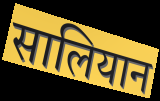
सालियान